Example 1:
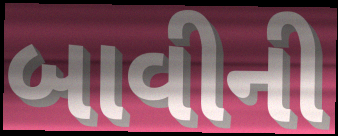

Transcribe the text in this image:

બાવીની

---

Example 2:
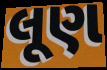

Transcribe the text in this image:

લૂણ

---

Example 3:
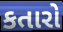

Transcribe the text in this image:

કતારો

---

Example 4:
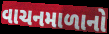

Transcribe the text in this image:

વાચનમાળાનો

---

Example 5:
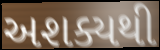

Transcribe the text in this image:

અશક્યથી